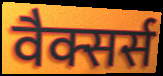
वैक्सर्स